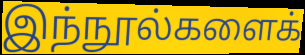
இந்நூல்களைக்